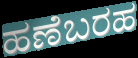
ಹಣೆಬರಹ